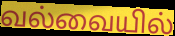
வல்வையில்